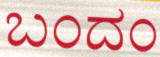
ಬಂದಂ